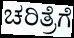
ಚರಿತ್ರೆಗೆ